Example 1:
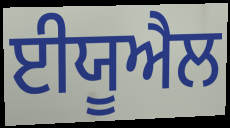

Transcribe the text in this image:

ਈਯੂਐਲ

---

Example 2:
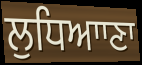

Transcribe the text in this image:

ਲੁਧਿਆਾਣਾ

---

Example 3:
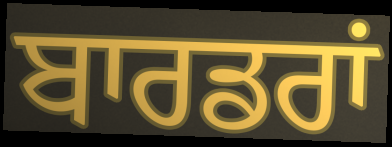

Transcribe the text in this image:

ਬਾਰਡਰਾਂ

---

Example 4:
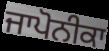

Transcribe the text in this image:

ਜਾਪੋਨੀਕਾ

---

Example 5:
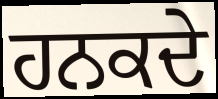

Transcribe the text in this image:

ਹਨਕਦੇ